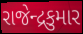
રાજેન્દ્રકુમાર